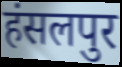
हंसलपुर